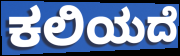
ಕಲಿಯದೆ